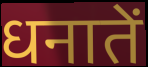
धनातें